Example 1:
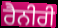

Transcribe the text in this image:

ਰੈਨੀਰੀ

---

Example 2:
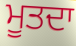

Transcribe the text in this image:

ਮੂਤਦਾ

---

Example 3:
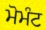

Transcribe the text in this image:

ਮੋਮੰਟ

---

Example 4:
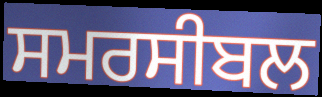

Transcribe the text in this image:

ਸਮਰਸੀਬਲ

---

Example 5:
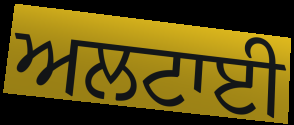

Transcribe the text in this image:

ਅਲਟਾਈ